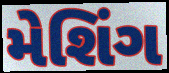
મેશિંગ